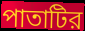
পাতাটির